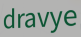
dravye